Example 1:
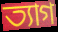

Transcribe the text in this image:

ত্যাগ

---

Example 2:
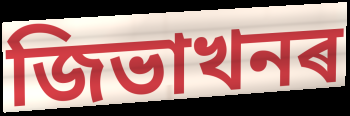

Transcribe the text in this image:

জিভাখনৰ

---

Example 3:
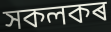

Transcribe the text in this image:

সকলকৰ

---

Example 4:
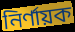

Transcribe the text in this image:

নিৰ্ণায়ক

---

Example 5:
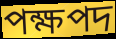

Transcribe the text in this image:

পক্ষপদ